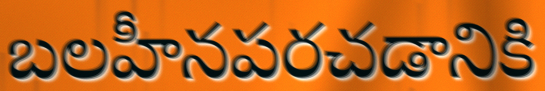
బలహీనపరచడానికి